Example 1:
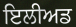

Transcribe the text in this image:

ਇਲੀਅਡ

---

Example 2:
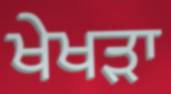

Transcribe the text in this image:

ਖੇਖੜਾ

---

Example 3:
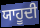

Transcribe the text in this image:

ਯਾਹੂਦੀ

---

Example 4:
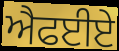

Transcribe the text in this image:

ਐਫਈਏ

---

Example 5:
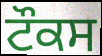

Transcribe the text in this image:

ਟੌਕਸ